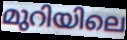
മുറിയിലെ